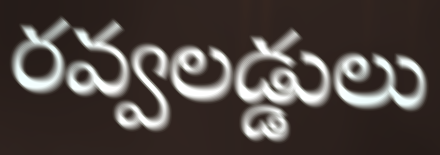
రవ్వలడ్డులు